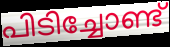
പിടിച്ചോണ്ട്